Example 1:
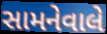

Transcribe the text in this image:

સામનેવાલે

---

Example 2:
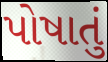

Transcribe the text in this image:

પોષાતું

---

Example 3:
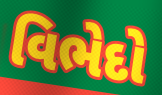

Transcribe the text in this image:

વિભેદો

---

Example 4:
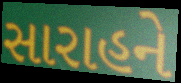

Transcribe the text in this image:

સારાહને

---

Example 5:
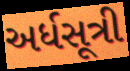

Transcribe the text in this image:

અર્ધસૂત્રી